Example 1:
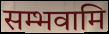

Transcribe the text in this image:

सम्भवामि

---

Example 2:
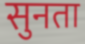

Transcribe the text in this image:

सुनता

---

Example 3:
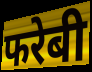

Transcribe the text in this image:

फरेबी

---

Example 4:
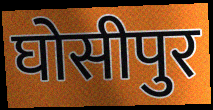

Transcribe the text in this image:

घोसीपुर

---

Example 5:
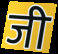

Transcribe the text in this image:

जी